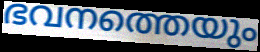
ഭവനത്തെയും